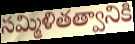
సమ్మిళితత్వానికి